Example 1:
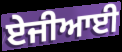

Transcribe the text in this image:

ਏਜੀਆਈ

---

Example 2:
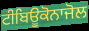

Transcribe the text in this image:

ਟੀਬਿਊਕੋਨਾਜੋਲ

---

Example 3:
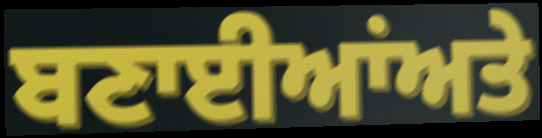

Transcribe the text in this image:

ਬਣਾਈਆਂਅਤੇ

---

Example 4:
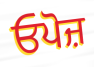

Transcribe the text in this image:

ਓਪੋਜ਼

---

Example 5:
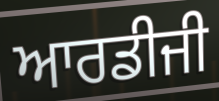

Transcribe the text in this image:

ਆਰਡੀਜੀ